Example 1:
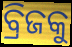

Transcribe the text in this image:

ବ୍ରିଜକୁ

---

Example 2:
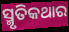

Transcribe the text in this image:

ସ୍ମୃତିକଥାର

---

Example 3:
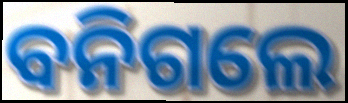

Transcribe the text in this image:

ବନିଗଲେ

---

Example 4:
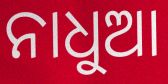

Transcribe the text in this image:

ନାଧୁଆ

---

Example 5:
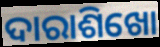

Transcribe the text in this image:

ଦାରାଶିଖୋ